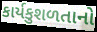
કાર્યકુશળતાનો